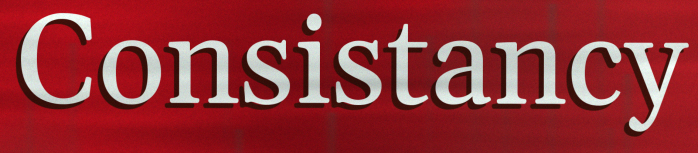
Consistancy